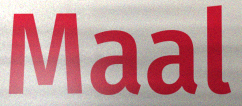
Maal